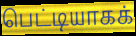
பெட்டியாகக்